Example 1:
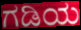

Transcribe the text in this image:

ಗಡಿಯ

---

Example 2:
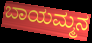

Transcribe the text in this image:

ಬಾಯಮ್ಮನ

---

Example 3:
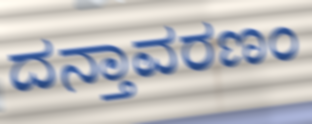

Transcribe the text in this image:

ದನ್ತಾವರಣಂ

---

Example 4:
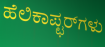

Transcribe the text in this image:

ಹೆಲಿಕಾಪ್ಟರ್‌ಗಳು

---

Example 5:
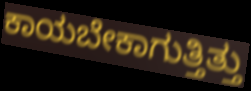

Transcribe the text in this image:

ಕಾಯಬೇಕಾಗುತ್ತಿತ್ತು